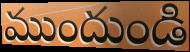
ముందుండి